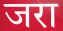
जरा